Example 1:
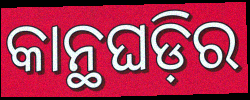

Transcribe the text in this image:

କାନ୍ଥଘଡ଼ିର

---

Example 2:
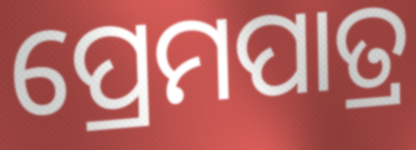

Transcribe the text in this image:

ପ୍ରେମପାତ୍ର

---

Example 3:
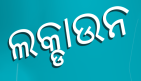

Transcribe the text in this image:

ଲକ୍ଡାଉନ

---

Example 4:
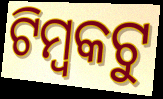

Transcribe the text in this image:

ଟିମ୍ବକଟୁ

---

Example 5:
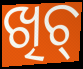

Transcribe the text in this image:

ଖିଚ୍